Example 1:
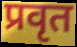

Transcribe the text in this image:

प्रवृत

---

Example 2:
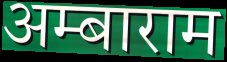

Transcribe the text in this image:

अम्बाराम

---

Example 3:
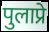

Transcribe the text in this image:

पुलाप्रे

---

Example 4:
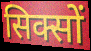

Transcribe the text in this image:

सिक्सों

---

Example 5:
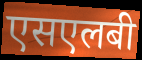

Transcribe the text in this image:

एसएलबी